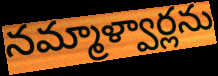
నమ్మాళ్వార్లను